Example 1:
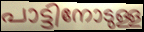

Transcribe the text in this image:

പാട്ടിനോടുള്ള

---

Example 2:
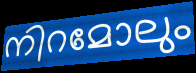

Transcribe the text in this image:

നിറമോലും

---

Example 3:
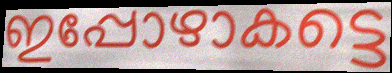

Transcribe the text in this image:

ഇപ്പോഴാകട്ടെ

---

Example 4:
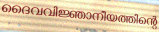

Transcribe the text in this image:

ദൈവവിജ്ഞാനീയത്തിന്റെ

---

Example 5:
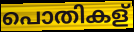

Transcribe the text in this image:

പൊതികള്